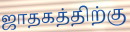
ஜாதகத்திற்கு